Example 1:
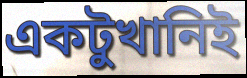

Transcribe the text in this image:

একটুখানিই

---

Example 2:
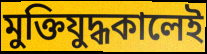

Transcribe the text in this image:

মুক্তিযুদ্ধকালেই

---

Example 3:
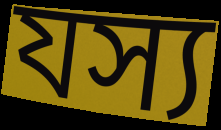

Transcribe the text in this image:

যস্য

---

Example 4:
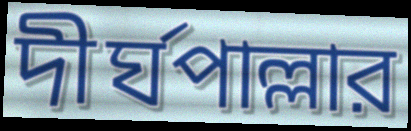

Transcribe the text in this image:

দীর্ঘপাল্লার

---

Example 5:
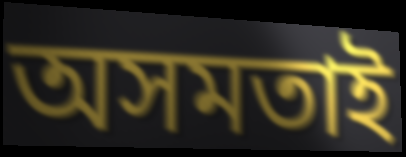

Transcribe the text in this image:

অসমতাই